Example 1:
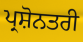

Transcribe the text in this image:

ਪ੍ਰਸ਼ੋਨਤਰੀ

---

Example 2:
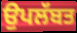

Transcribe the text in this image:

ਉਪਲੱਬਤ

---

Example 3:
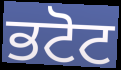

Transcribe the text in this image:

ਭਟੋਟ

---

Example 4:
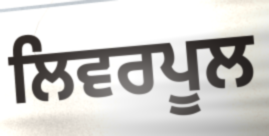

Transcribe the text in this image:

ਲਿਵਰਪੂਲ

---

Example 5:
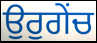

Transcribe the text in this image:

ਉਰੁਗੇਂਚ